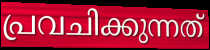
പ്രവചിക്കുന്നത്